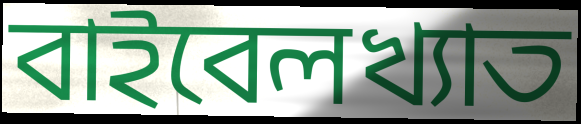
বাইবেলখ্যাত